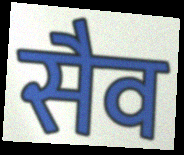
सैव